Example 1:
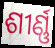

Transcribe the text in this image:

ଶୀର୍ଣ୍ଣ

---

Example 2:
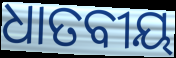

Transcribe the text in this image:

ଧାତବୀୟ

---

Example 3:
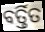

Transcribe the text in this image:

ବର୍ତ୍ତିତ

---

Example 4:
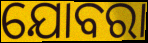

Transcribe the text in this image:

ଯୋବରା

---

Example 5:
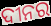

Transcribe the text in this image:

ଦୀନର